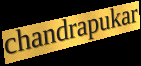
chandrapukar